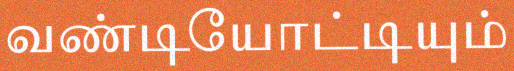
வண்டியோட்டியும்